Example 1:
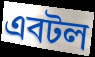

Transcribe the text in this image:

এবটল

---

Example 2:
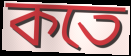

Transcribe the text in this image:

কতে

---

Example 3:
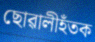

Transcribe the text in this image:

ছোৱালীহঁতক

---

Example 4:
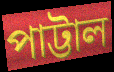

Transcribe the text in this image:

পাট্টাল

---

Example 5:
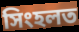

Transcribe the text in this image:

সিংহলত